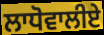
ਲਾਧੋਵਾਲੀਏ